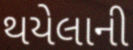
થયેલાની